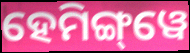
ହେମିଙ୍ଗ୍‌ୱେ